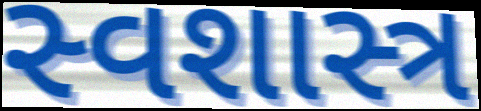
સ્વશાસ્ત્ર